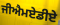
ਜੀਐਮਏਡੀਏ